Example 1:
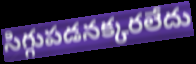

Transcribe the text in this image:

సిగ్గుపడనక్కరలేదు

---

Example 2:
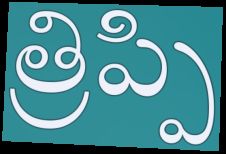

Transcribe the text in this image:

త్రిప్పి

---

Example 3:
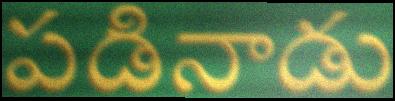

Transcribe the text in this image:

పడినాడు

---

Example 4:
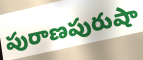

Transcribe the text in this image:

పురాణపురుషా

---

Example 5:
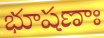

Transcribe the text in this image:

భూషణాః